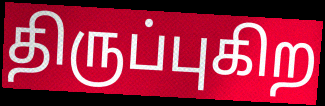
திருப்புகிற